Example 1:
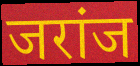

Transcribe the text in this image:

जरांज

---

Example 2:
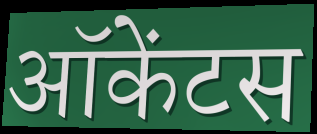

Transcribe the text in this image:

ऑकेंटस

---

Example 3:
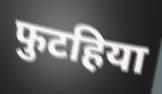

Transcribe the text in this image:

फुटहिया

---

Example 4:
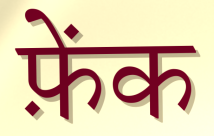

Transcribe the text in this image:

फ़ेंक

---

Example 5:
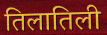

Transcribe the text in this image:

तिलातिली